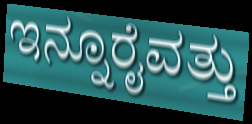
ಇನ್ನೂರೈವತ್ತು